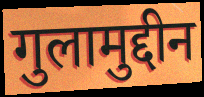
गुलामुद्दीन